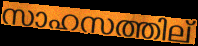
സാഹസത്തില്